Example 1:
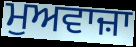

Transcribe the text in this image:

ਮੁਅਵਾਜ਼ਾ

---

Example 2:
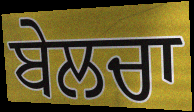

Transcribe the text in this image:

ਬੇਲਚਾ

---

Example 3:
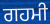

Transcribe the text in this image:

ਗਹਮੀ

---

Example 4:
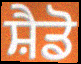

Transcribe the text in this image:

ਸ਼ੈਡੋ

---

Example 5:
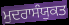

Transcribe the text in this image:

ਮੁਦਰਾਸੰਯੁਕਤ